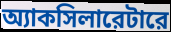
অ্যাকসিলারেটারে